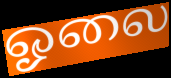
ஓலை